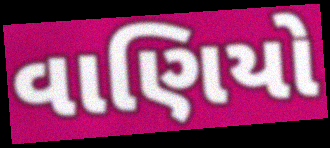
વાણિયો